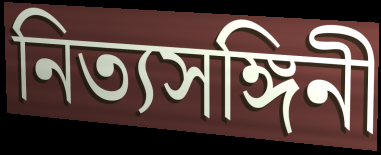
নিত্যসঙ্গিনী